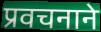
प्रवचनाने